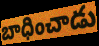
బాధించాడు